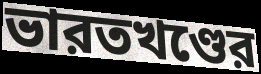
ভারতখণ্ডের